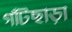
গাঁটছাড়া